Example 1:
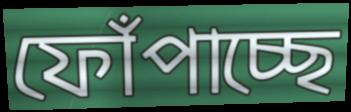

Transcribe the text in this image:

ফোঁপাচ্ছে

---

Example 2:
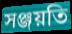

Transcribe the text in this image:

সঞ্জয়তি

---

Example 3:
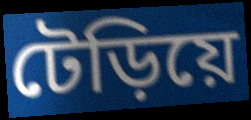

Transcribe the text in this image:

টেড়িয়ে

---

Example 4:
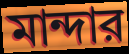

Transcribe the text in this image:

মান্দার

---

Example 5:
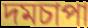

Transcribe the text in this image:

দমচাপা